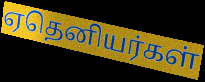
ஏதெனியர்கள்